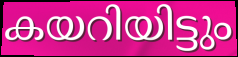
കയറിയിട്ടും